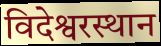
विदेश्वरस्थान